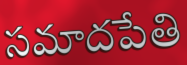
సమాదపేతి